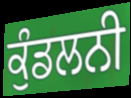
ਕੁੰਡਲਨੀ